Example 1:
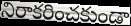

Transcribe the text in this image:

నిరాకరించకుండా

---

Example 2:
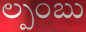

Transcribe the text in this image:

ల్పంబు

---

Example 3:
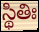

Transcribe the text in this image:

స్థితిః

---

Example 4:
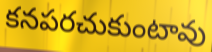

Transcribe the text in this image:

కనపరచుకుంటావు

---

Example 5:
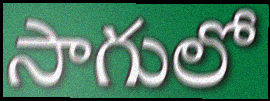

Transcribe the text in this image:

సాగులో